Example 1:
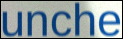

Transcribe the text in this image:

unche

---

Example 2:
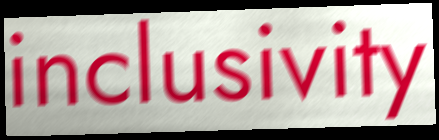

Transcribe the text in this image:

inclusivity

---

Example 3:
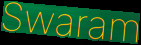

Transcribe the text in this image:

Swaram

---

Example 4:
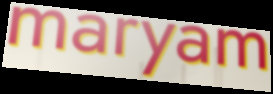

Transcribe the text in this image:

maryam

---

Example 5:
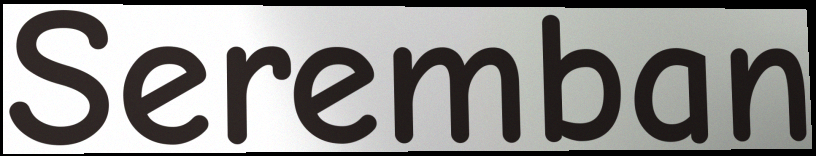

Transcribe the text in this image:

Seremban